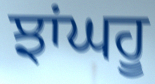
ਝਾਂਘਹੂ